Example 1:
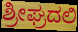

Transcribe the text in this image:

ಶ್ರೀಘ್ರದಲಿ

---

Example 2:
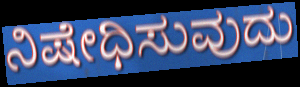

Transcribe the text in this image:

ನಿಷೇಧಿಸುವುದು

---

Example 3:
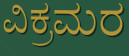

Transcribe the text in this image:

ವಿಕ್ರಮರ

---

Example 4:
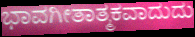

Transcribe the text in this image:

ಭಾವಗೀತಾತ್ಮಕವಾದುದು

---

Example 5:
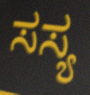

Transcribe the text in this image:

ಸಸ್ಯ